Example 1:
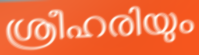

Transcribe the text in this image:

ശ്രീഹരിയും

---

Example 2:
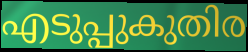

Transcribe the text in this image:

എടുപ്പുകുതിര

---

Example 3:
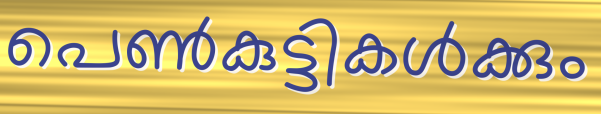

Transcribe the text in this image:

പെൺകുട്ടികൾക്കും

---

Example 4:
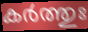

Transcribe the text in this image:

കർത്തുഃ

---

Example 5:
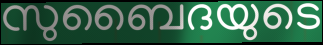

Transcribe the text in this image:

സുബൈദയുടെ